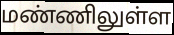
மண்ணிலுள்ள